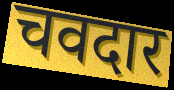
चवदार